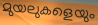
മുയലുകളെയും